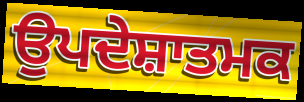
ਉਪਦੇਸ਼ਾਤਮਕ